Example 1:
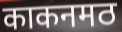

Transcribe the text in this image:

काकनमठ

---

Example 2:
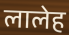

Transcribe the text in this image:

लालेह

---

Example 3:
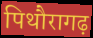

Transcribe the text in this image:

पिथौरागढ़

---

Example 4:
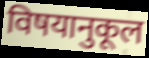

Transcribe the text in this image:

विषयानुकूल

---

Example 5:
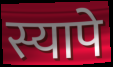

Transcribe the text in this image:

स्यापे